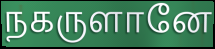
நகருளானே